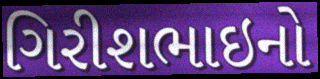
ગિરીશભાઇનો